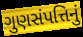
ગુણસંપત્તિનું